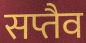
सप्तैव